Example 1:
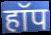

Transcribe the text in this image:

हॉप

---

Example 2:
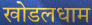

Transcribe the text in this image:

खोडलधाम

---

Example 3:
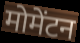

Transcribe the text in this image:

मोमेंटन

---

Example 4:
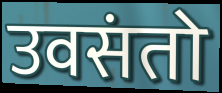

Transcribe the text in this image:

उवसंतो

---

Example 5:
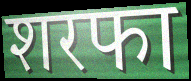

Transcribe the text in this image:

शरफा